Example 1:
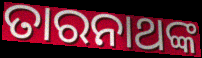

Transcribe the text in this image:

ତାରନାଥଙ୍କ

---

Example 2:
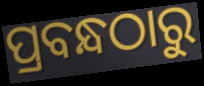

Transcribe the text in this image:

ପ୍ରବନ୍ଧଠାରୁ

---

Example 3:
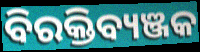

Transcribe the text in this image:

ବିରକ୍ତିବ୍ୟଞ୍ଜକ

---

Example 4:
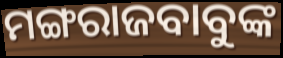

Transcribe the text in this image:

ମଙ୍ଗରାଜବାବୁଙ୍କ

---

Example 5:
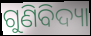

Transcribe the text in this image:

ଗୁଣିବିଦ୍ୟା